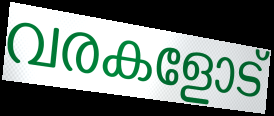
വരകളോട്